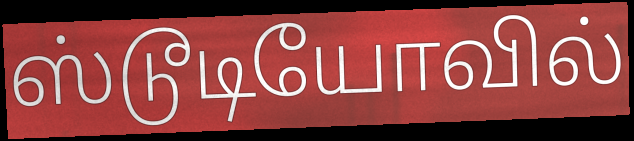
ஸ்டூடியோவில்